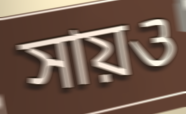
সায়ও